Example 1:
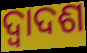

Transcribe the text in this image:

ଦ୍ୱାଦଶ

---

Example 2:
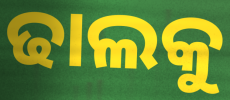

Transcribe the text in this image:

ଢାଲକୁ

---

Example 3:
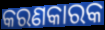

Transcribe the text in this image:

କରଣକାରକ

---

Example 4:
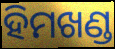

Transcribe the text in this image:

ହିମଖଣ୍ଡ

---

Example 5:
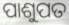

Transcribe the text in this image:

ପାଶୁପତ